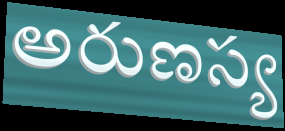
అరుణస్య